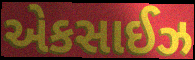
એકસાઈઝ